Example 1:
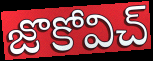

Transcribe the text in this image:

జొకోవిచ్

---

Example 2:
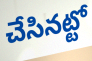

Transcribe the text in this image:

చేసినట్టో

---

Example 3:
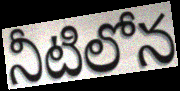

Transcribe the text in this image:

నీటిలోన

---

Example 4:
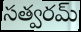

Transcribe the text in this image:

సత్వరమ్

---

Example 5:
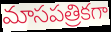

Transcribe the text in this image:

మాసపత్రికగా